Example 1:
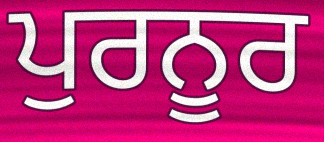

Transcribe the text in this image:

ਪੁਰਨੂਰ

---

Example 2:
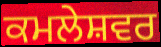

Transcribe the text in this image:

ਕਮਲੇਸ਼ਵਰ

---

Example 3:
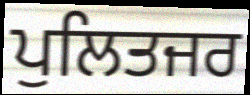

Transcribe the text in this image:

ਪੁਲਿਤਜਰ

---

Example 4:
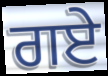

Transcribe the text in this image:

ਗਏ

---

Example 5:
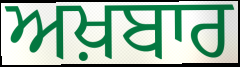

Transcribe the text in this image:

ਅਖ਼ਬਾਰ